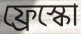
ফ্রেস্কো